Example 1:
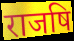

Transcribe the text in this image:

राजषि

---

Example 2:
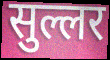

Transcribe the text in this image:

सुल्लर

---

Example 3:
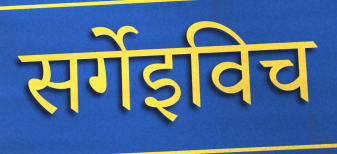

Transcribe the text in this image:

सर्गेइविच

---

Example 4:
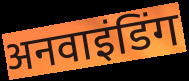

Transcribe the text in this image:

अनवाइंडिंग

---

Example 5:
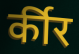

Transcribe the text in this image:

र्कीर